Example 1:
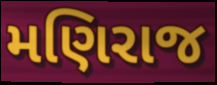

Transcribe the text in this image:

મણિરાજ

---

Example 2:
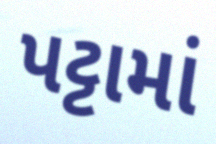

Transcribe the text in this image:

પટ્ટામાં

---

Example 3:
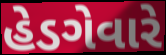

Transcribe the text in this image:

હેડગેવારે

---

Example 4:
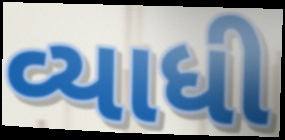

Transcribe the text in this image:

વ્યાધી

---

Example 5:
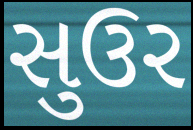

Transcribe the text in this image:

સુઉર